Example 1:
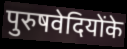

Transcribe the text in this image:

पुरुषवेदियोंके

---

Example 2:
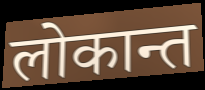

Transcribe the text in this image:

लोकान्त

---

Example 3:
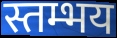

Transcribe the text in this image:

स्तम्भय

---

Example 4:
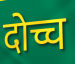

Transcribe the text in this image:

दोच्च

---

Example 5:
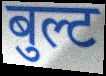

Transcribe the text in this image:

बुल्ट